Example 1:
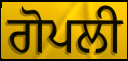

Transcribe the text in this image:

ਗੋਪਲੀ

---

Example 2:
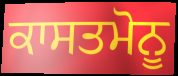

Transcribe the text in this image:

ਕਾਸਤਮੋਨੂ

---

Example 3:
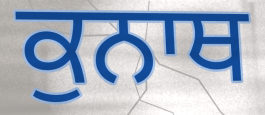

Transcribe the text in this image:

ਕੁਨਾਥ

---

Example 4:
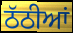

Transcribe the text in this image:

ਠੱਠੀਆਂ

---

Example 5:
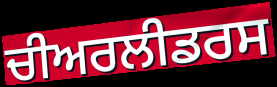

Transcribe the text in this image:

ਚੀਅਰਲੀਡਰਸ